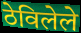
ठेविलेले